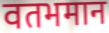
वतभमान